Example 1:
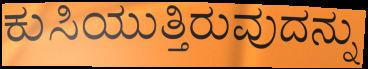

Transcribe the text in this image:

ಕುಸಿಯುತ್ತಿರುವುದನ್ನು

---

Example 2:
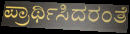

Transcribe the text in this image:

ಪ್ರಾರ್ಥಿಸಿದರಂತೆ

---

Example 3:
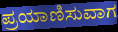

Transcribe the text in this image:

ಪ್ರಯಾಣಿಸುವಾಗ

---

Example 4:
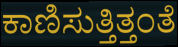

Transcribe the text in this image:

ಕಾಣಿಸುತ್ತಿತ್ತಂತೆ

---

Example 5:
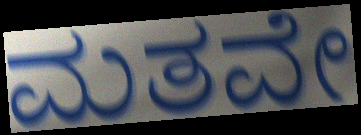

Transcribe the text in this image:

ಮತವೇ